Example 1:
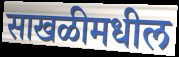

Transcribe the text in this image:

साखळीमधील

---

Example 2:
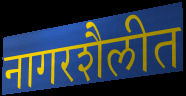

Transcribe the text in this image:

नागरशैलीत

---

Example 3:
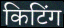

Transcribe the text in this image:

किटिंग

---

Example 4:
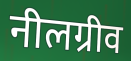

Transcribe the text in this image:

नीलग्रीव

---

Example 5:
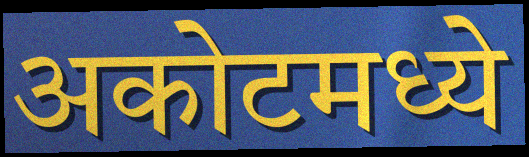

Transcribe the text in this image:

अकोटमध्ये